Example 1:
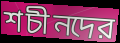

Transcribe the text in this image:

শচীনদের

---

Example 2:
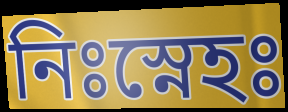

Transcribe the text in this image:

নিঃস্নেহঃ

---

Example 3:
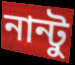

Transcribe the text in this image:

নান্টু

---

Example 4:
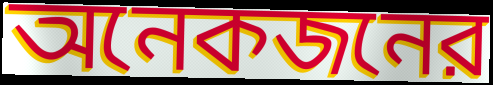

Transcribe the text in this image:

অনেকজনের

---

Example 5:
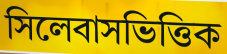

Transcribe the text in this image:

সিলেবাসভিত্তিক